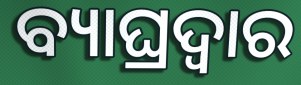
ବ୍ୟାଘ୍ରଦ୍ଵାର